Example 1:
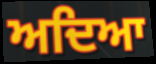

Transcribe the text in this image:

ਅਦਿਆ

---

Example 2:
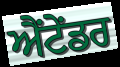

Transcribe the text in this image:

ਐਂਟੇਂਡਰ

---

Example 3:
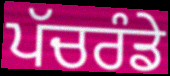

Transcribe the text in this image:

ਪੱਚਰੰਡੇ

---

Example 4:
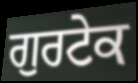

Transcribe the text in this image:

ਗੁਰਟੇਕ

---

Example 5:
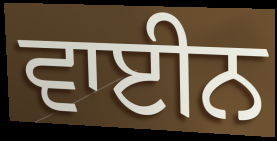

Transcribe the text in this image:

ਵਾਈਨ